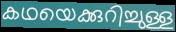
കഥയെക്കുറിച്ചുള്ള